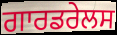
ਗਾਰਡਰੇਲਸ